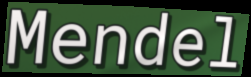
Mendel